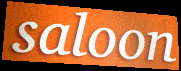
saloon